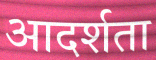
आदर्शता